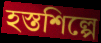
হস্তশিল্পে